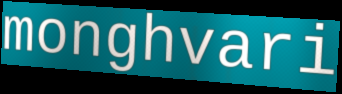
monghvari